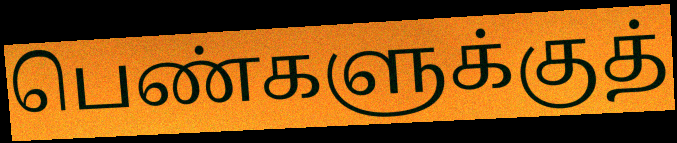
பெண்களுக்குத்